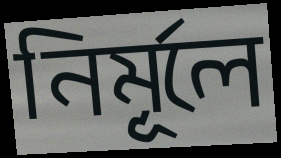
নির্মূলে